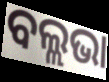
ବଲ୍ଲଭା